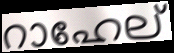
റാഹേല്